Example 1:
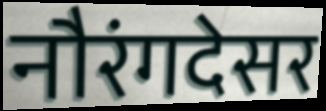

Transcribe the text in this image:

नौरंगदेसर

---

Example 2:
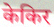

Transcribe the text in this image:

केकिर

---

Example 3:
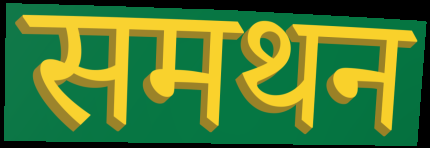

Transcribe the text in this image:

समथन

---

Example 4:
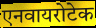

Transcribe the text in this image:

एनवायरोटेक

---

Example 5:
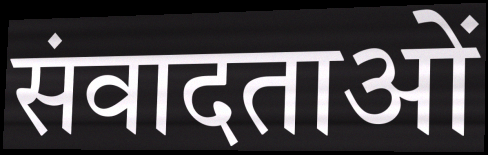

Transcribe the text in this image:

संवादताओं